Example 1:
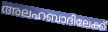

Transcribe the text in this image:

അലഹബാദിലേക്ക്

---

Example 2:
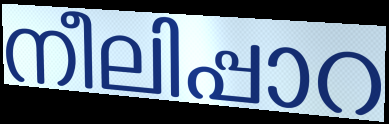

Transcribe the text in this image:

നീലിപ്പാറ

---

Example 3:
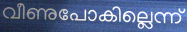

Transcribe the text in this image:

വീണുപോകില്ലെന്ന്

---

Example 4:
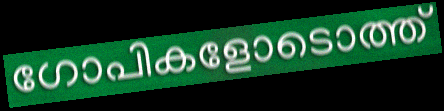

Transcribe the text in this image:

ഗോപികളോടൊത്ത്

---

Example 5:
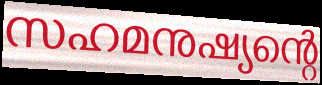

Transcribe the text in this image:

സഹമനുഷ്യന്റെ